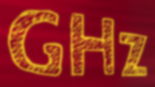
GHz